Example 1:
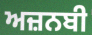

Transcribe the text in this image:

ਅਜ਼ਨਬੀ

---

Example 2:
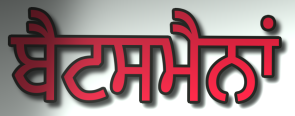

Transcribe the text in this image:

ਬੈਟਸਮੈਨਾਂ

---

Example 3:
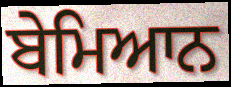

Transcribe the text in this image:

ਬੇਮਿਆਨ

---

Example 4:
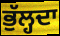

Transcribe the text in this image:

ਭੁੱਲ੍ਹਦਾ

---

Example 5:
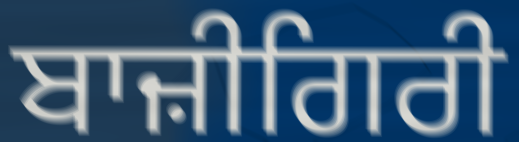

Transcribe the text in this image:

ਬਾਜ਼ੀਗਿਰੀ